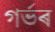
গৰ্ভৰ